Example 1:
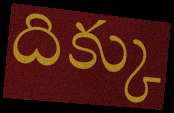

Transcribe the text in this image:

దిక్కు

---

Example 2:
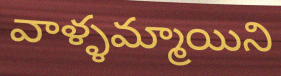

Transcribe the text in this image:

వాళ్ళమ్మాయిని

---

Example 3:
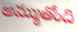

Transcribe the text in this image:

అమ్ముతోంది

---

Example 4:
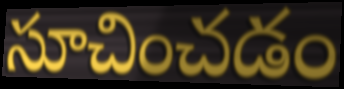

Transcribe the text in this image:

సూచించడం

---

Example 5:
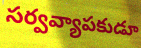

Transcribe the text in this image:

సర్వవ్యాపకుడూ